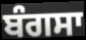
ਬੰਗਸਾ